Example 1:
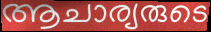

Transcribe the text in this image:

ആചാര്യരുടെ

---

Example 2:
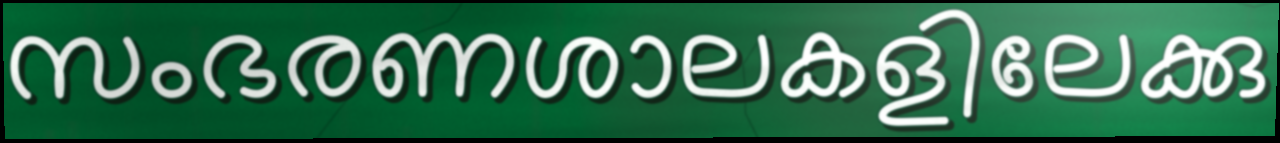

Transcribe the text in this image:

സംഭരണശാലകളിലേക്കു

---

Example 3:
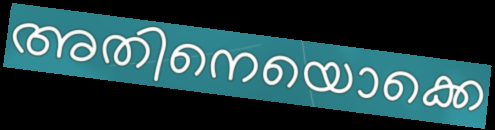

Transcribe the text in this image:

അതിനെയൊക്കെ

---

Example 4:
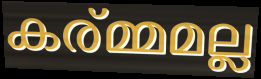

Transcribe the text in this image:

കര്മ്മമല്ല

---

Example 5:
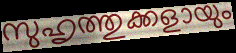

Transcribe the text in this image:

സുഹൃത്തുക്കളായും